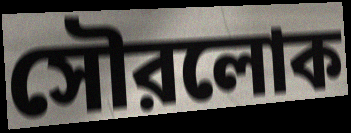
সৌরলোক